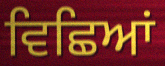
ਵਿਛਿਆਂ